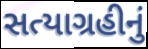
સત્યાગ્રહીનું